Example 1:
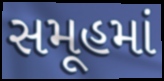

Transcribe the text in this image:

સમૂહમાં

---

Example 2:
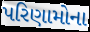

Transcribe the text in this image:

પરિણામોના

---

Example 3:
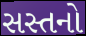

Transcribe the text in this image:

સસ્તનો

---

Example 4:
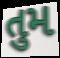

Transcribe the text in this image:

તુમ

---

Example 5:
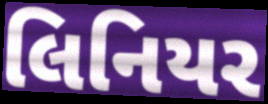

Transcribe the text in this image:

લિનિયર